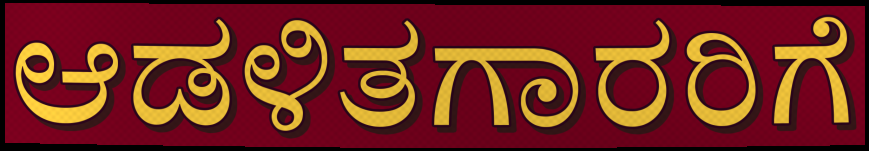
ಆಡಳಿತಗಾರರಿಗೆ